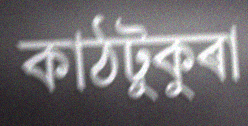
কাঠটুকুৰা